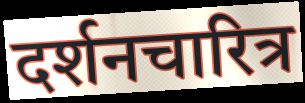
दर्शनचारित्र